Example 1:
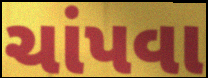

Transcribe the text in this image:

ચાંપવા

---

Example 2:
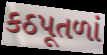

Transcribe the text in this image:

કઠપૂતળાં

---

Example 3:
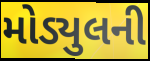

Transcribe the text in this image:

મોડ્યુલની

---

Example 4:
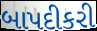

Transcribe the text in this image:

બાપદીકરી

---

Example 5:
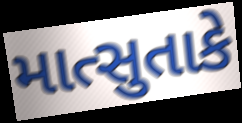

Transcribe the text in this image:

માત્સુતાકે